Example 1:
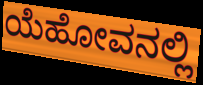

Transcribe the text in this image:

ಯೆಹೋವನಲ್ಲಿ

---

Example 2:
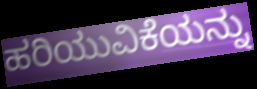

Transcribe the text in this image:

ಹರಿಯುವಿಕೆಯನ್ನು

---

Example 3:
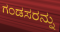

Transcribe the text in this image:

ಗಂಡಸರನ್ನು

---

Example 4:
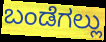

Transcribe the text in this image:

ಬಂಡೆಗಲ್ಲು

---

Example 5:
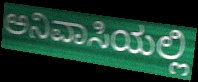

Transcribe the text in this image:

ಅನಿವಾಸಿಯಲ್ಲಿ